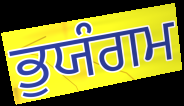
ਭੁਯੰਗਮ